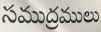
సముద్రములు